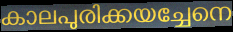
കാലപുരിക്കയച്ചേനെ